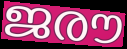
ജരൗ